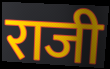
राजी